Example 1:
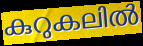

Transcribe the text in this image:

കുറുകലിൽ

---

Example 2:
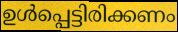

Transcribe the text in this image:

ഉൾപ്പെട്ടിരിക്കണം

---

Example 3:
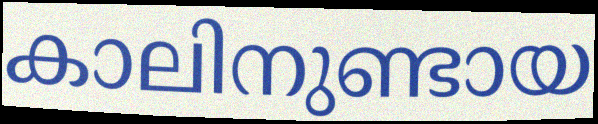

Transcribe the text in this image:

കാലിനുണ്ടായ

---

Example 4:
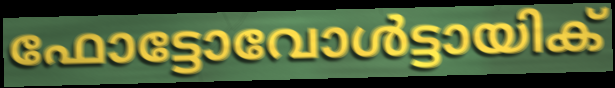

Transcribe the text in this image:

ഫോട്ടോവോൾട്ടായിക്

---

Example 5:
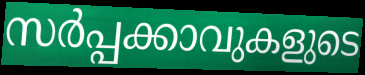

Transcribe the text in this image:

സർപ്പക്കാവുകളുടെ